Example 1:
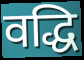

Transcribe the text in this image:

वद्धि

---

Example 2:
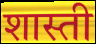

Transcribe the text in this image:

शास्ती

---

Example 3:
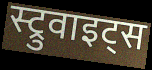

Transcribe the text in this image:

स्ट्रुवाइट्स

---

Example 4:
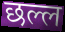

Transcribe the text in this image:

छल्ल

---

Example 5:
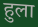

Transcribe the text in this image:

हुला